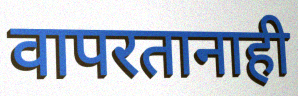
वापरतानाही